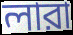
লারা